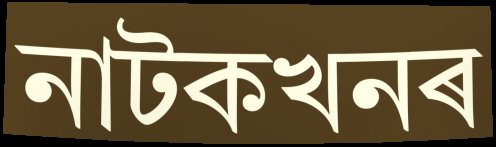
নাটকখনৰ